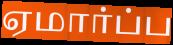
ஏமார்ப்ப